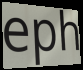
eph